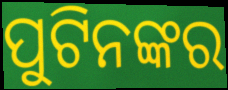
ପୁଟିନଙ୍କର